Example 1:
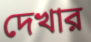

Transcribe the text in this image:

দেখার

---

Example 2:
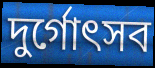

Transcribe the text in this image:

দুর্গোৎসব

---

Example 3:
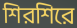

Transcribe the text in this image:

শিরশিরে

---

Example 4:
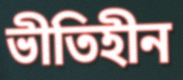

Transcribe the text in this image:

ভীতিহীন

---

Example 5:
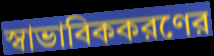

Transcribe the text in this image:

স্বাভাবিককরণের